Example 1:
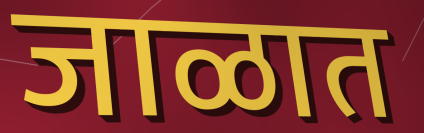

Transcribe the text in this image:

जाळात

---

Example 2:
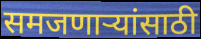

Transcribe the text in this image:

समजणाऱ्यांसाठी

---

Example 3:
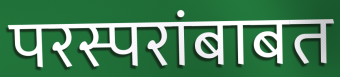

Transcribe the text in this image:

परस्परांबाबत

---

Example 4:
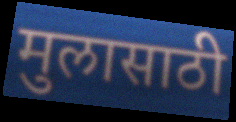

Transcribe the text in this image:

मुलासाठी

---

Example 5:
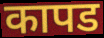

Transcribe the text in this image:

कापड